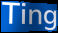
Ting